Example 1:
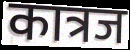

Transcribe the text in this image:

कात्रज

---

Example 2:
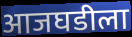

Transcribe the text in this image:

आजघडीला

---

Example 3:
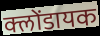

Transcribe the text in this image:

क्लोंडायक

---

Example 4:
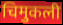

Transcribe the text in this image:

चिमुकली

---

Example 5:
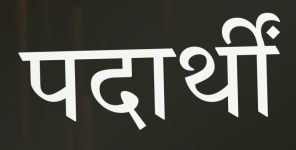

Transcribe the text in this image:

पदार्थीं